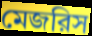
মেজরিস